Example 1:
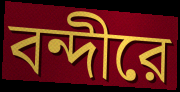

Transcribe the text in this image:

বন্দীরে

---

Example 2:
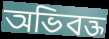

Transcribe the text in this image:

অভিবক্ত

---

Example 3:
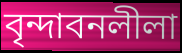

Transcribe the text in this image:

বৃন্দাবনলীলা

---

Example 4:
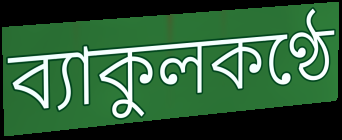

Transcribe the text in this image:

ব্যাকুলকণ্ঠে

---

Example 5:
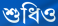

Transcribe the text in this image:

শুধিও